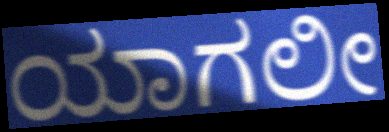
ಯಾಗಲೀ